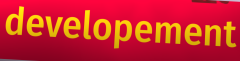
developement